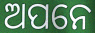
ଅପନେ